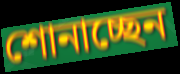
শোনাচ্ছেন